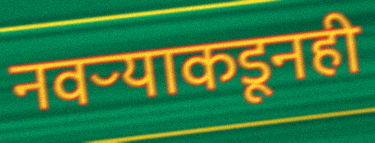
नवऱ्याकडूनही